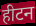
हीटन